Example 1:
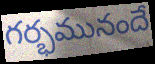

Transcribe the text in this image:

గర్భమునందే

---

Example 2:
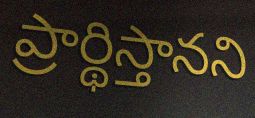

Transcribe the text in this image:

ప్రార్థిస్తానని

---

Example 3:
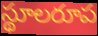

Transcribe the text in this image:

స్థూలరూప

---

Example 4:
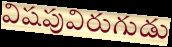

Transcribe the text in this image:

విషపువిరుగుడు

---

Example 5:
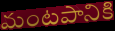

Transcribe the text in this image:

మంటపానికి